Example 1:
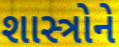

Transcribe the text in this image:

શાસ્ત્રોને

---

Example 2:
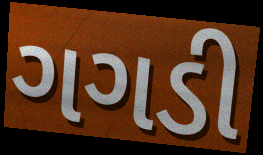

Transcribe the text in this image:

ગગડી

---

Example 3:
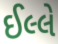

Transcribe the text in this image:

ઈલ્લે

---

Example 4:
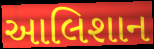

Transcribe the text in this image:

આલિશાન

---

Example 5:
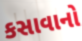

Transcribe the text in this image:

કસાવાનો